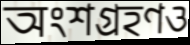
অংশগ্রহণও